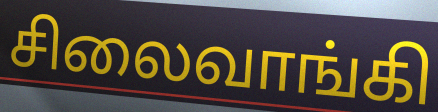
சிலைவாங்கி